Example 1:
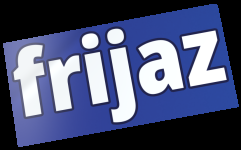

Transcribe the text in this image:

frijaz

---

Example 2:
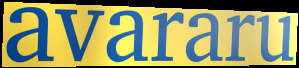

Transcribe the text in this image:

avararu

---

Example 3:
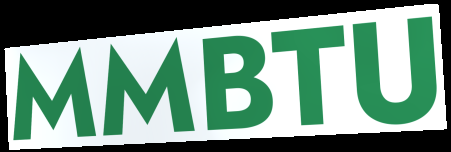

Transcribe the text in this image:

MMBTU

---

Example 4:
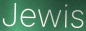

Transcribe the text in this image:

Jewis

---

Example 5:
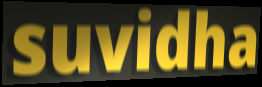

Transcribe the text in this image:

suvidha